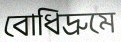
বোধিদ্রুমে